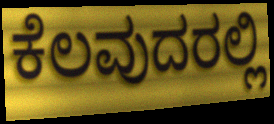
ಕೆಲವುದರಲ್ಲಿ